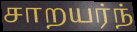
சாறயர்ந்